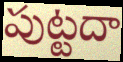
పుట్టదా